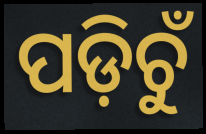
ପଡ଼ିଚୁଁ